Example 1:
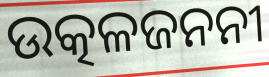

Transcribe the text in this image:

ଉତ୍କଳଜନନୀ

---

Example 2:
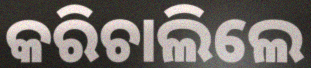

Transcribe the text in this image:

କରିଚାଲିଲେ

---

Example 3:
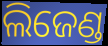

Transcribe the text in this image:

ଲିଜେଣ୍ଡ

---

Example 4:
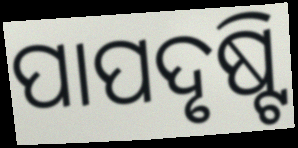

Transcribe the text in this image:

ପାପଦୃଷ୍ଟି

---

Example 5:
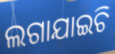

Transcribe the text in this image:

ଲଗାଯାଇଚି